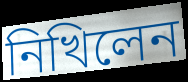
নিখিলেন